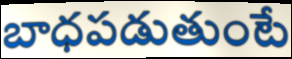
బాధపడుతుంటే